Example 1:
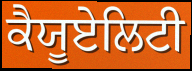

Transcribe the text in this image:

ਕੈਯੂਏਲਿਟੀ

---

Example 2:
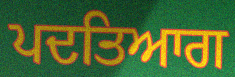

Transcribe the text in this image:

ਪਦਤਿਆਗ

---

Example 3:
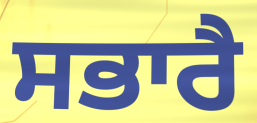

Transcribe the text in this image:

ਸਭਾਰੈ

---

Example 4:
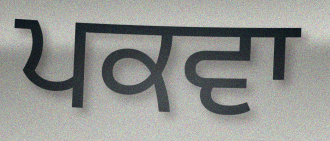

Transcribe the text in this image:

ਪਕਵਾ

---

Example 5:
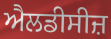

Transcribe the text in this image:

ਐਲਡੀਸੀਜ਼